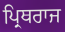
ਪ੍ਰਿਥਰਾਜ